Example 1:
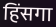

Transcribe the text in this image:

हिंसगा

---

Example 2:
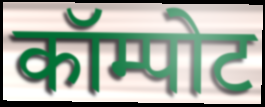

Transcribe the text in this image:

कॉम्पोट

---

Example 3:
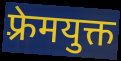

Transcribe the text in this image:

फ़्रेमयुक्त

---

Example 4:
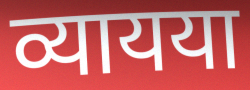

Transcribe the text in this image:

व्यायया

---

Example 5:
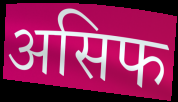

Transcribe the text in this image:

असिफ